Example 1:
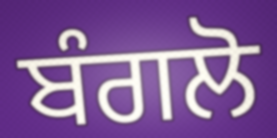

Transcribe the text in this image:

ਬੰਗਲੋ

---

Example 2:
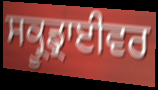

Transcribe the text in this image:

ਸਕ੍ਰੂਡ੍ਰਾਈਵਰ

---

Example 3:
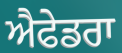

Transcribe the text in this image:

ਐਫੇਡਰਾ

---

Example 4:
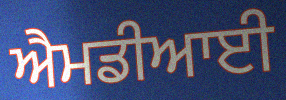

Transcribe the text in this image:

ਐਮਡੀਆਈ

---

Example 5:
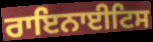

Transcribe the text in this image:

ਰਾਇਨਾਈਟਿਸ